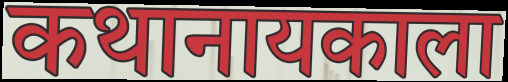
कथानायकाला